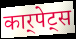
कार्पेट्स